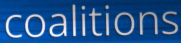
coalitions